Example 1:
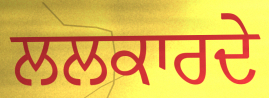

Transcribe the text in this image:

ਲਲਕਾਰਦੇ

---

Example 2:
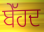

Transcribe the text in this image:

ਬੇੱਹਦ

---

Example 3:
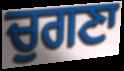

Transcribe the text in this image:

ਚੁਗਣਾ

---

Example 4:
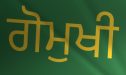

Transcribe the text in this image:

ਗੋਮੁਖੀ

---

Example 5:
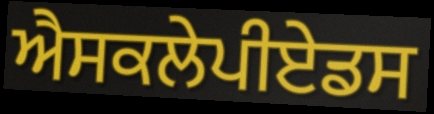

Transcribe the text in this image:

ਐਸਕਲੇਪੀਏਡਸ